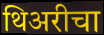
थिअरीचा